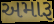
અમારૂ